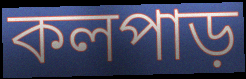
কলপাড়